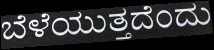
ಬೆಳೆಯುತ್ತದೆಂದು